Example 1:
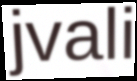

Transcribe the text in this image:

jvali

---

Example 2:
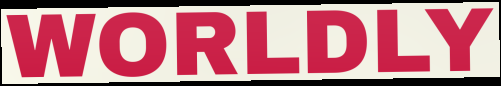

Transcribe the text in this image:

WORLDLY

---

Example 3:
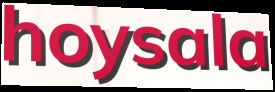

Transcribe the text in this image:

hoysala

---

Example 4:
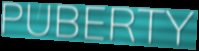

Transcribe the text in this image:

PUBERTY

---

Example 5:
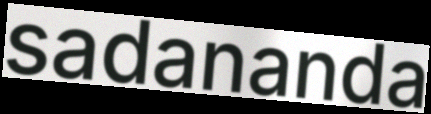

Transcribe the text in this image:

sadananda